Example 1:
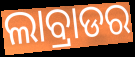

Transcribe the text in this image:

ଲାବ୍ରାଡର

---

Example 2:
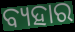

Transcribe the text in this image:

ବ୍ୟହାର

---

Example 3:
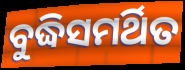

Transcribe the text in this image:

ବୁଦ୍ଧିସମର୍ଥିତ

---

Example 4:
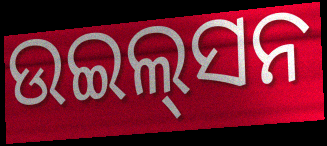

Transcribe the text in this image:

ଉଇଲ୍‌ସନ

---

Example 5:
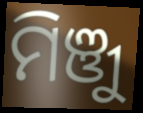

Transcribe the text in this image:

ମିଞ୍ଜୁ